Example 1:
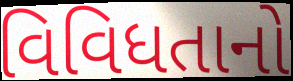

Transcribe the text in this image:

વિવિધતાનો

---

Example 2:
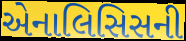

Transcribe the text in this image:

એનાલિસિસની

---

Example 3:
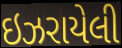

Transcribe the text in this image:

ઇઝરાયેલી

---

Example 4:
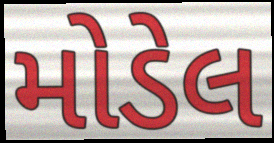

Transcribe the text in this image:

મોડેલ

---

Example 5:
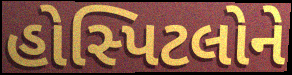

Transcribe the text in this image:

હોસ્પિટલોને